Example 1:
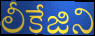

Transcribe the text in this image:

లీకేజిని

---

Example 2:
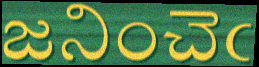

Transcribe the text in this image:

జనించెఁ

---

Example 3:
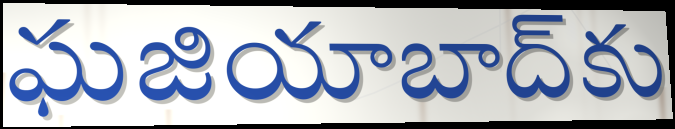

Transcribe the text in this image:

ఘజియాబాద్‌కు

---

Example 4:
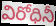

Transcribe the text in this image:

విరోధినీ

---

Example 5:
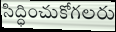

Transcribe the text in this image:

సిద్ధించుకోగలరు